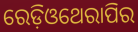
ରେଡ଼ିଓଥେରାପିର